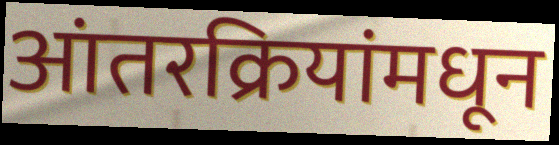
आंतरक्रियांमधून